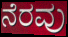
ನೆರವು